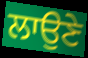
ਲਾਉਣੇ